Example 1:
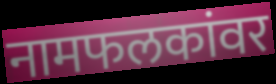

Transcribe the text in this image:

नामफलकांवर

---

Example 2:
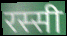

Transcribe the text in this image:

रस्सी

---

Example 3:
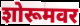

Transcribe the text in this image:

शोरूमवर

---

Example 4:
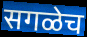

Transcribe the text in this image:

सगळेच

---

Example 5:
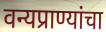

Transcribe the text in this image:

वन्यप्राण्यांचा